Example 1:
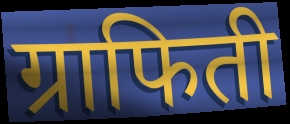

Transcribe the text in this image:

ग्राफिती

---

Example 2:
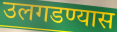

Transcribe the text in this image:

उलगडण्यास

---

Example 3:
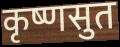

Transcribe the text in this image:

कृष्णसुत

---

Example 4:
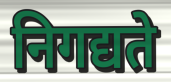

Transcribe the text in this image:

निगद्यते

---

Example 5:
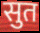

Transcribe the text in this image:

सुत